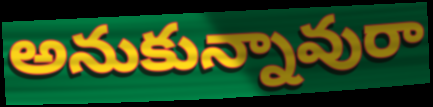
అనుకున్నావురా